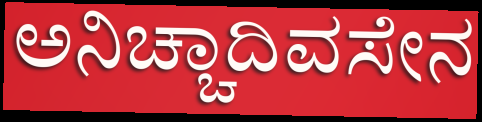
ಅನಿಚ್ಚಾದಿವಸೇನ